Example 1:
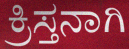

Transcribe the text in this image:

ಕ್ರಿಸ್ತನಾಗಿ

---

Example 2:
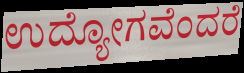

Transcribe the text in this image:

ಉದ್ಯೋಗವೆಂದರೆ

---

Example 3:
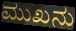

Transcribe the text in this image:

ಮುಖನು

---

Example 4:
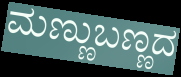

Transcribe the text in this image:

ಮಣ್ಣುಬಣ್ಣದ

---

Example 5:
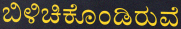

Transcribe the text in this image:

ಬಿಳಿಚಿಕೊಂಡಿರುವೆ